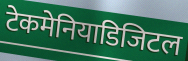
टेकमेनियाडिजिटल